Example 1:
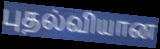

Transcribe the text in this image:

புதல்வியான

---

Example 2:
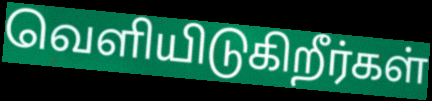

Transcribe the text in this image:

வெளியிடுகிறீர்கள்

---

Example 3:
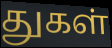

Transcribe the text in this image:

துகள்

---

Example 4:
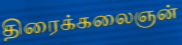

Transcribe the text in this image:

திரைக்கலைஞன்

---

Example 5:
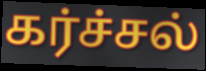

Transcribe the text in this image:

கர்ச்சல்